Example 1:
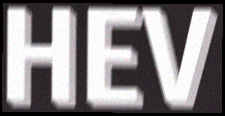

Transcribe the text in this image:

HEV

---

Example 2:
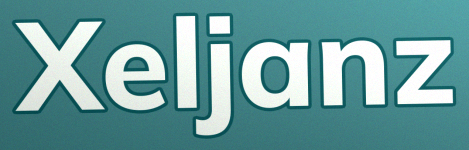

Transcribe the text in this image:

Xeljanz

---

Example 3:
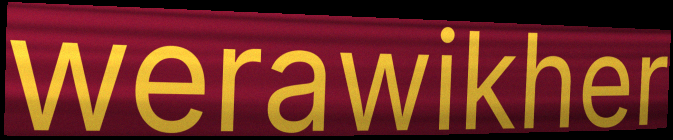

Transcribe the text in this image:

werawikher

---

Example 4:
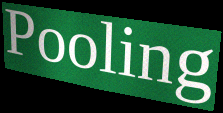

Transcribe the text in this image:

Pooling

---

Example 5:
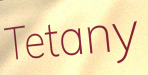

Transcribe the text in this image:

Tetany